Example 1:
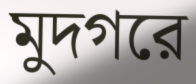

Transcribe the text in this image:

মুদগরে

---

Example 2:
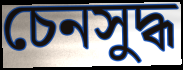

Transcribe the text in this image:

চেনসুদ্ধ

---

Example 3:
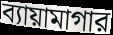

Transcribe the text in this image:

ব্যায়ামাগার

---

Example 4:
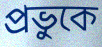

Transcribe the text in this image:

প্রভুকে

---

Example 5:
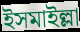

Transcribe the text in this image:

ইসমাইল্লা